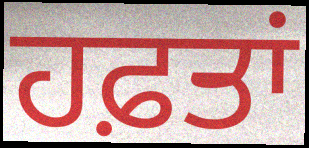
ਹਫ਼ਤਾਂ